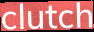
clutch